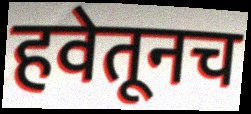
हवेतूनच